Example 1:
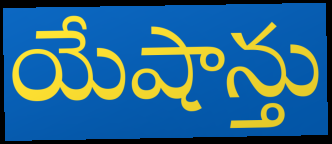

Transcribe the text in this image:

యేషాన్తు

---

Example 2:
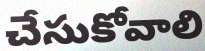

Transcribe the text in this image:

చేసుకోవాలి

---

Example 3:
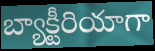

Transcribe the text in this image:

బ్యాక్టీరియాగా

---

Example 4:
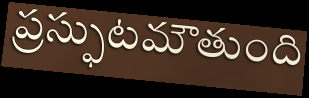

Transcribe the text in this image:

ప్రస్ఫుటమౌతుంది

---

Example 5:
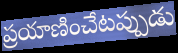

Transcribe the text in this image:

ప్రయాణించేటప్పుడు